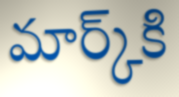
మార్క్‌కి